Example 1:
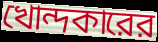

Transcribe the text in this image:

খোন্দকারের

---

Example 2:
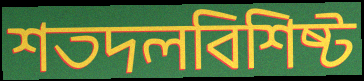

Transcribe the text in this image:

শতদলবিশিষ্ট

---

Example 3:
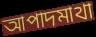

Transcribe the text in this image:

আপাদমাথা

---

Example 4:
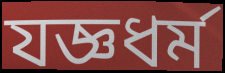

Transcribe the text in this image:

যজ্ঞধর্ম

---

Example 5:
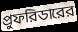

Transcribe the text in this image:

প্রুফরিডারের